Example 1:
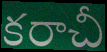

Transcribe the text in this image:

కరాచీ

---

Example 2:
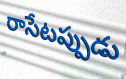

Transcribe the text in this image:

రాసేటప్పుడు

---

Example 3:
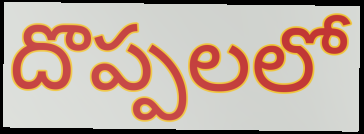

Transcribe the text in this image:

దొప్పలలో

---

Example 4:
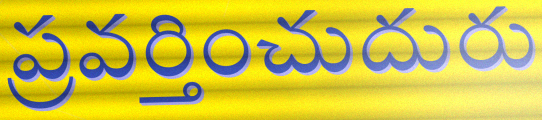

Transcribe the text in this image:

ప్రవర్తించుదురు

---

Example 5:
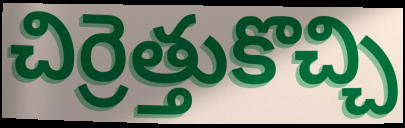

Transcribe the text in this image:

చిర్రెత్తుకొచ్చి